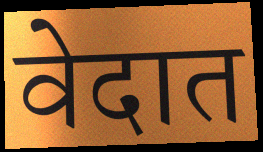
वेदात